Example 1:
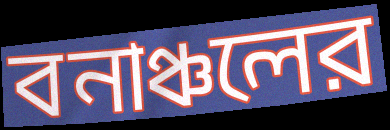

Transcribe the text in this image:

বনাঞ্চলের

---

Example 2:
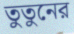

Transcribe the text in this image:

তুতুনের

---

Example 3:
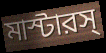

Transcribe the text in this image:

মাস্টারস্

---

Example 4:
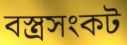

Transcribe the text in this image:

বস্ত্রসংকট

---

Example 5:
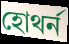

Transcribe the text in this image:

হোথর্ন